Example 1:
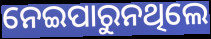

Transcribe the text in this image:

ନେଇପାରୁନଥିଲେ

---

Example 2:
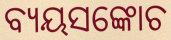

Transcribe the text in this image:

ବ୍ୟୟସଙ୍କୋଚ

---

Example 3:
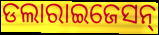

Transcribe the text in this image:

ଡଲାରାଇଜେସନ୍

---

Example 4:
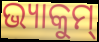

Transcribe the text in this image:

ଭ୍ୟାକୁମ୍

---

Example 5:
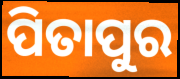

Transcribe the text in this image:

ପିତାପୁର